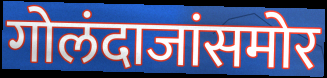
गोलंदाजांसमोर